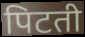
पिटती